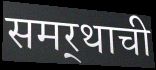
समर्थाची